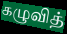
கழுவித்